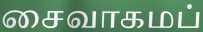
சைவாகமப்